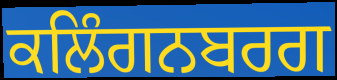
ਕਲਿੰਗਨਬਰਗ